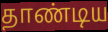
தாண்டிய